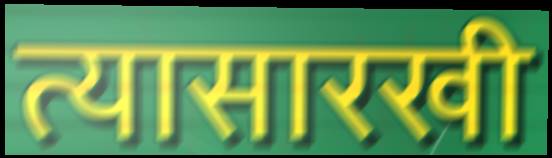
त्यासारखी